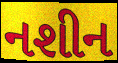
નશીન